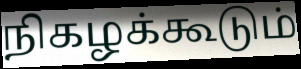
நிகழக்கூடும்